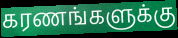
கரணங்களுக்கு